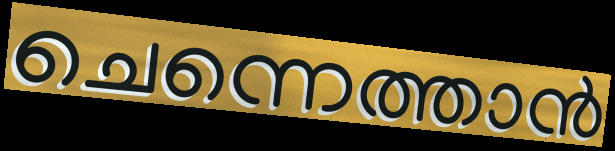
ചെന്നെത്താൻ